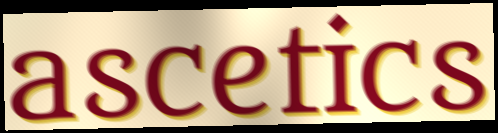
ascetics